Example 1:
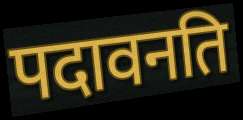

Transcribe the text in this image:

पदावनति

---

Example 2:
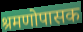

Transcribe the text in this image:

श्रमणोपासक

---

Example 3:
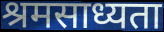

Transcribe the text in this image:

श्रमसाध्यता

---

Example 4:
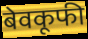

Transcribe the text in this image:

बेवकूफी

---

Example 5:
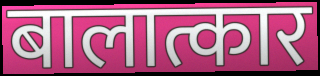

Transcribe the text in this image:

बालात्कार